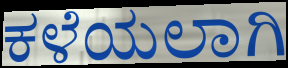
ಕಳೆಯಲಾಗಿ